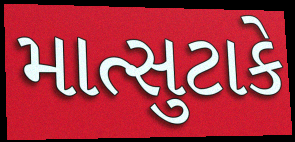
માત્સુટાકે